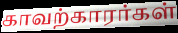
காவற்காரர்கள்